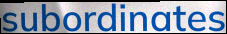
subordinates